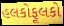
હલકોફૂલકો